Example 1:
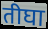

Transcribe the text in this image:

तीघा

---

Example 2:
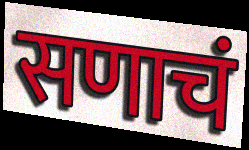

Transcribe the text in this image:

सणाचं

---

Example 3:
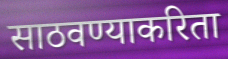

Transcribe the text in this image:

साठवण्याकरिता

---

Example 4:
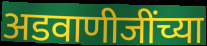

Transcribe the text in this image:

अडवाणीजींच्या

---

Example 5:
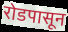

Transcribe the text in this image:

रोडपासून